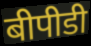
बीपीडी